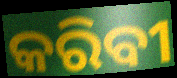
କରିବୀ